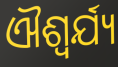
ଐଶ୍ଵର୍ଯ୍ୟ